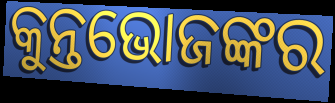
କୁନ୍ତଭୋଜଙ୍କର